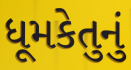
ધૂમકેતુનું